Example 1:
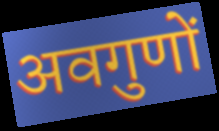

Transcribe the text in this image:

अवगुणों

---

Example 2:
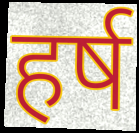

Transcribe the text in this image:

हर्ष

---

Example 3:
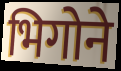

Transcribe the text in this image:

भिगोने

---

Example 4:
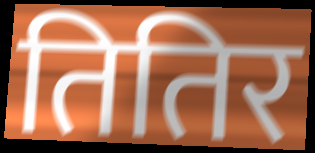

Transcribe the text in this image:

तितिर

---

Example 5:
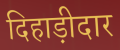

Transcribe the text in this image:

दिहाड़ीदार